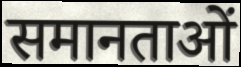
समानताओं